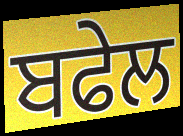
ਬਫੇਲ